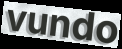
vundo